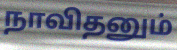
நாவிதனும்